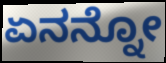
ಏನನ್ನೋ